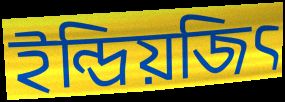
ইন্দ্রিয়জিৎ